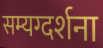
सम्यग्दर्शना